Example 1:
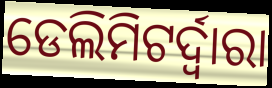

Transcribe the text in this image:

ଡେଲିମିଟର୍ଦ୍ୱାରା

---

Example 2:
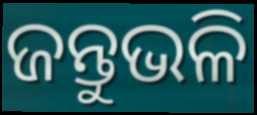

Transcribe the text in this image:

ଜନ୍ତୁଭଳି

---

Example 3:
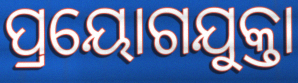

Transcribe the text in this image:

ପ୍ରୟୋଗଯୁକ୍ତା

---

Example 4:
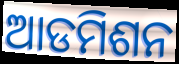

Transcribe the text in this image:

ଆଡମିଶନ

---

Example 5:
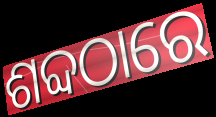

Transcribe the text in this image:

ଶବ୍ଦଠାରେ